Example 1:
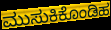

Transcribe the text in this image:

ಮುಸುಕಿಕೊಂಡಿಹ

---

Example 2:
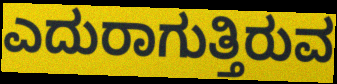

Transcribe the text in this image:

ಎದುರಾಗುತ್ತಿರುವ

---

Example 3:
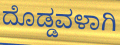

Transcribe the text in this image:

ದೊಡ್ಡವಳಾಗಿ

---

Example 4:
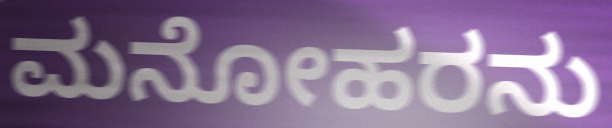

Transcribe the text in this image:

ಮನೋಹರನು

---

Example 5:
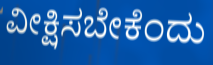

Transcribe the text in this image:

ವೀಕ್ಷಿಸಬೇಕೆಂದು